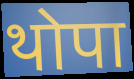
थोपा